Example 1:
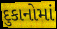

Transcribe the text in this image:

દુકાનોમાં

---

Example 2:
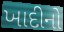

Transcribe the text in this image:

ખાદીનો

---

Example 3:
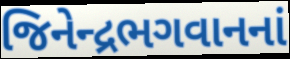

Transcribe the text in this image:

જિનેન્દ્રભગવાનનાં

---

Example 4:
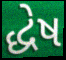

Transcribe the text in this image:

દ્ધેષ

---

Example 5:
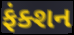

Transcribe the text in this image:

ફંક્શન